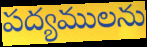
పద్యములను